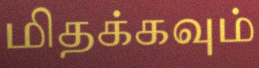
மிதக்கவும்